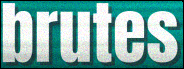
brutes